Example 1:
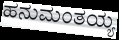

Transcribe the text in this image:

ಹನುಮಂತಯ್ಯ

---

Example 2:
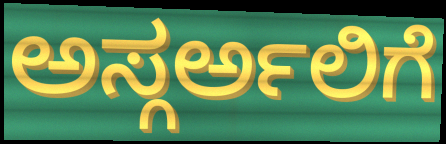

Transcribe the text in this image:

ಅಸ್ಗರ್ಅಲಿಗೆ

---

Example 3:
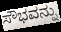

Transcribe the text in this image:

ಸೌಭವನ್ನು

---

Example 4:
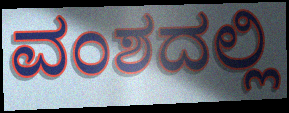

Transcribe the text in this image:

ವಂಶದಲ್ಲಿ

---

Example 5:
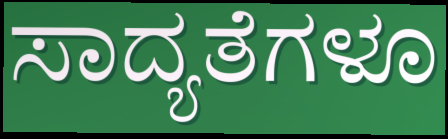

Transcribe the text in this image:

ಸಾದ್ಯತೆಗಳೂ